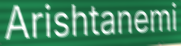
Arishtanemi